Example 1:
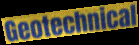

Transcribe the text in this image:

Geotechnical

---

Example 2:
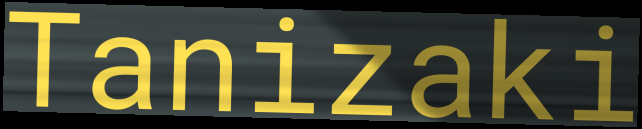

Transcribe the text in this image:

Tanizaki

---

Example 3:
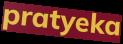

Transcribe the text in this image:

pratyeka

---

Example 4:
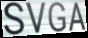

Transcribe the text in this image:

SVGA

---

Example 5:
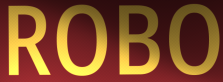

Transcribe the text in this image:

ROBO